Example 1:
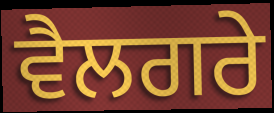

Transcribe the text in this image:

ਵੈਲਗਰੇ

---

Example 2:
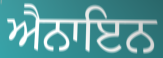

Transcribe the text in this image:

ਐਨਾਇਨ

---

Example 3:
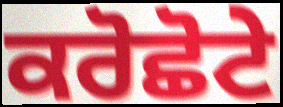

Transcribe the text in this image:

ਕਰੋਛੋਟੇ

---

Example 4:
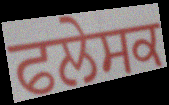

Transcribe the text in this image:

ਫਲੇਸਕ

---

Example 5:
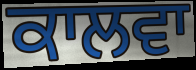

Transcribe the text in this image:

ਕਾਲਵਾ